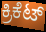
ಕ್ರಿಕೆಟ್